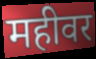
महीवर